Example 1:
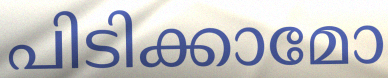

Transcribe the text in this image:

പിടിക്കാമോ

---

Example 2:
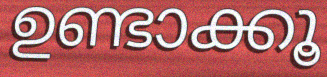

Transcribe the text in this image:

ഉണ്ടാക്കൂ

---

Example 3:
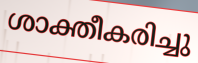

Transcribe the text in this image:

ശാക്തീകരിച്ചു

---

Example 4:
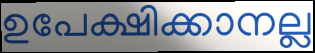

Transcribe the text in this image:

ഉപേക്ഷിക്കാനല്ല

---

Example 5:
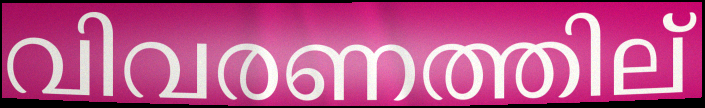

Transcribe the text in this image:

വിവരണത്തില്